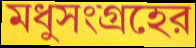
মধুসংগ্রহের